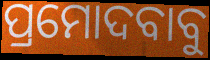
ପ୍ରମୋଦବାବୁ